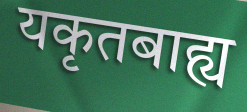
यकृतबाह्य